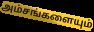
அம்சங்களையும்